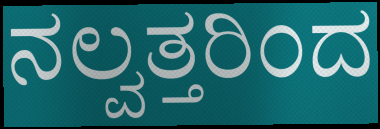
ನಲ್ವತ್ತರಿಂದ